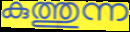
കുത്തുന്ന